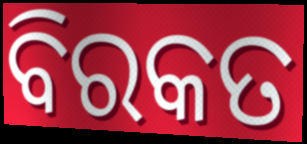
ବିରକତ